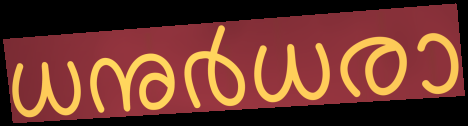
ധനുർധരാ